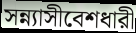
সন্ন্যাসীবেশধারী